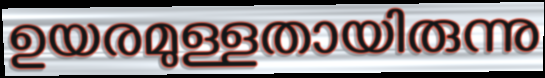
ഉയരമുള്ളതായിരുന്നു